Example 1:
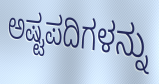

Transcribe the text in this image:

ಅಷ್ಟಪದಿಗಳನ್ನು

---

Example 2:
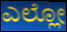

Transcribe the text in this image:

ಎಲ್ಲೋ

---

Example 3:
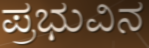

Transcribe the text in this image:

ಪ್ರಭುವಿನ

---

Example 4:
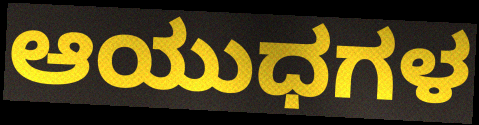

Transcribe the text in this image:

ಆಯುಧಗಳ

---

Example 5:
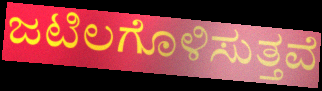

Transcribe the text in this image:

ಜಟಿಲಗೊಳಿಸುತ್ತವೆ